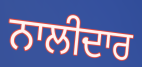
ਨਾਲੀਦਾਰ